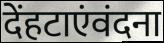
देंहटाएंवंदना